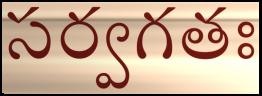
సర్వగతః